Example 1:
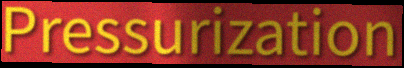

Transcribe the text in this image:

Pressurization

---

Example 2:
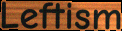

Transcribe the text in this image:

Leftism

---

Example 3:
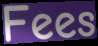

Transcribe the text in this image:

Fees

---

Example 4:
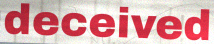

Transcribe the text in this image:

deceived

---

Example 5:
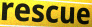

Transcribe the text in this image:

rescue